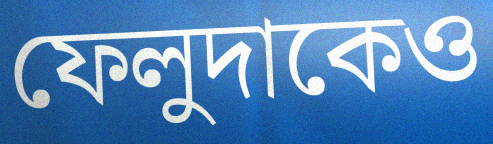
ফেলুদাকেও